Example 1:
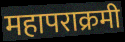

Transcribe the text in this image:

महापराक्रमी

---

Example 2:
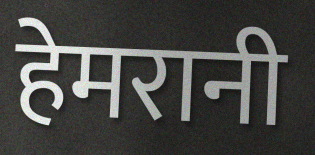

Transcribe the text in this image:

हेमरानी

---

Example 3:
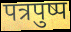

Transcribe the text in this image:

पत्रपुष्प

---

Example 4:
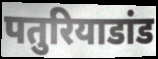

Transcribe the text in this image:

पतुरियाडांड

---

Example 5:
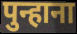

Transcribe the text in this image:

पुन्हाना